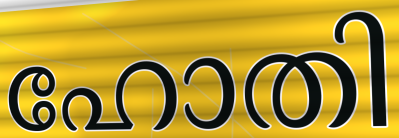
ഹോതി